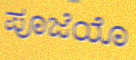
ಪೂಜೆಯೊ